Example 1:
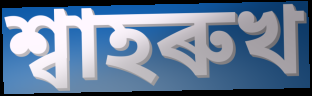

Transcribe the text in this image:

শ্বাহৰুখ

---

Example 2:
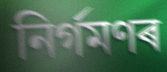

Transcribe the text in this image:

নিৰ্গমণৰ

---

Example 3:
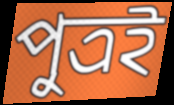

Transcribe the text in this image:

পুত্ৰই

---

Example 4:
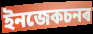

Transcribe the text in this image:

ইনজেকচনৰ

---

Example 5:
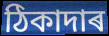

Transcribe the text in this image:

ঠিকাদাৰ